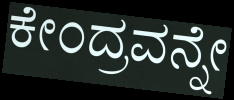
ಕೇಂದ್ರವನ್ನೇ